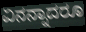
ಏನನ್ನಾದರೂ